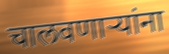
चालवणार्‍यांना